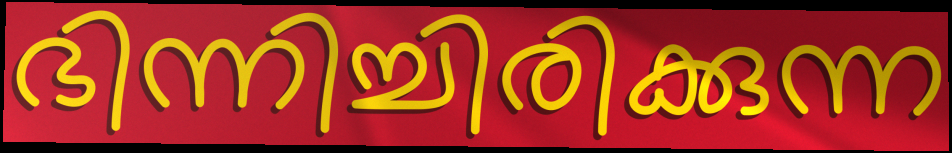
ഭിന്നിച്ചിരിക്കുന്ന